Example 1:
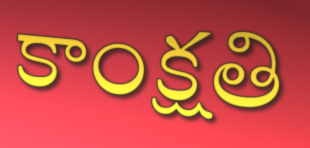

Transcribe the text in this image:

కాంక్షతి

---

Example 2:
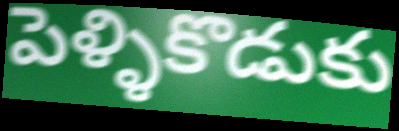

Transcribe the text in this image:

పెళ్ళికొడుకు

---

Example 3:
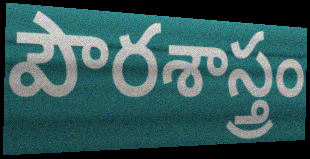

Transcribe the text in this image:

పౌరశాస్త్రం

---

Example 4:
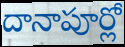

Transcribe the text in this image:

దానాపూర్లో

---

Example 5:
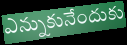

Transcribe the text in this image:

ఎన్నుకునేందుకు